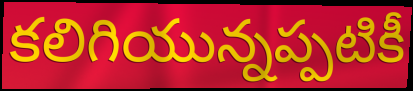
కలిగియున్నప్పటికీ